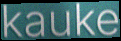
kauke